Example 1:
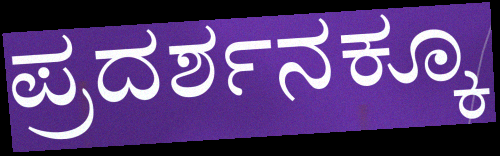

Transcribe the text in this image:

ಪ್ರದರ್ಶನಕ್ಕೂ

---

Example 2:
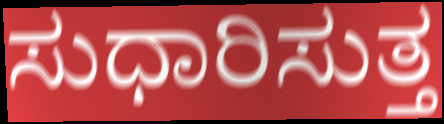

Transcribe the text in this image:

ಸುಧಾರಿಸುತ್ತ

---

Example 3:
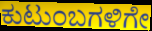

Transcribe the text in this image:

ಕುಟುಂಬಗಳಿಗೇ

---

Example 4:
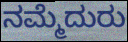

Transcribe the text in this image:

ನಮ್ಮೆದುರು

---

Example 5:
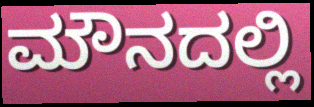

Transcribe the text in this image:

ಮೌನದಲ್ಲಿ